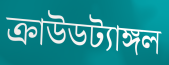
ক্রাউডট্যাঙ্গল